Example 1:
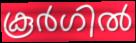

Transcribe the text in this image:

കൂർഗിൽ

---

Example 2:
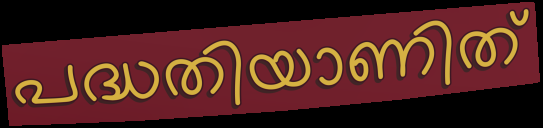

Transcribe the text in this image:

പദ്ധതിയാണിത്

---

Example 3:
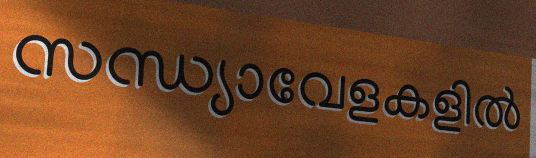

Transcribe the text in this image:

സന്ധ്യാവേളകളിൽ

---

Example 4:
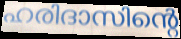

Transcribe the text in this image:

ഹരിദാസിന്റെ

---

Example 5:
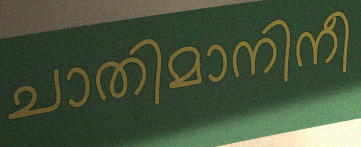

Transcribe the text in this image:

ചാതിമാനിനീ